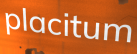
placitum